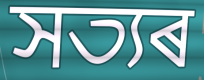
সত্যৰ